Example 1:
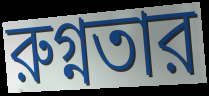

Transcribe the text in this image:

রুগ্নতার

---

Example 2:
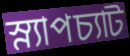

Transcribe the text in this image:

স্ন্যাপচ্যাট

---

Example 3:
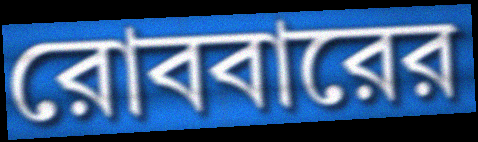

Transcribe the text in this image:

রোববারের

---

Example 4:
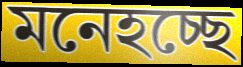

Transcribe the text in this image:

মনেহচ্ছে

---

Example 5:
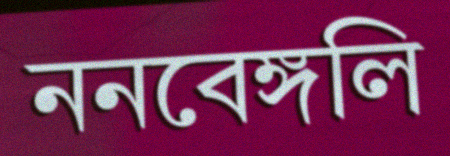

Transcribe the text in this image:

ননবেঙ্গলি